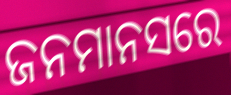
ଜନମାନସରେ